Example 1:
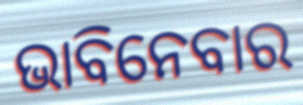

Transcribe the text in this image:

ଭାବିନେବାର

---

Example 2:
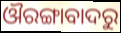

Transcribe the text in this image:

ଔରଙ୍ଗାବାଦରୁ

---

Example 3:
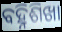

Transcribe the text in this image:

ବହ୍ନିଶିଖା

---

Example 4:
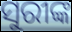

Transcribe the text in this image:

ସୁରୀଙ୍କ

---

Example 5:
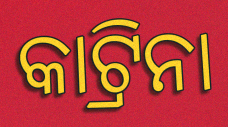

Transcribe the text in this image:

କାଟ୍ରିନା